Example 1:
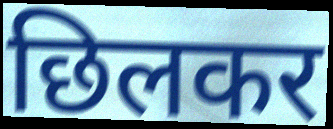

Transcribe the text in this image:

छिलकर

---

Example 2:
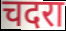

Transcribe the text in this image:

चदरा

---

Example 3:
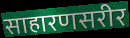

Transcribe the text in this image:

साहारणसरीर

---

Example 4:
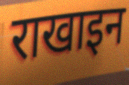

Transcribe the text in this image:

राखाइन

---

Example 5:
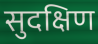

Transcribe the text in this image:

सुदक्षिण